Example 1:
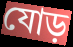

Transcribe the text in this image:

যোড়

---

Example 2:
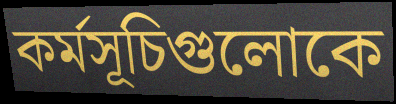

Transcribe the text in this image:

কর্মসূচিগুলোকে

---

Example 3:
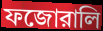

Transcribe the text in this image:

ফজোরালি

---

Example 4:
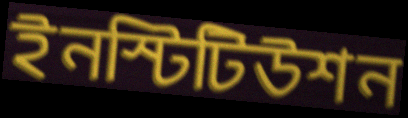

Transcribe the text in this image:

ইনস্টিটিউশন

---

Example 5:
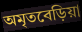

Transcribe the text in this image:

অমৃতবেড়িয়া